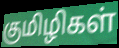
குமிழிகள்